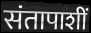
संतापाशीं